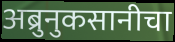
अब्रुनुकसानीचा